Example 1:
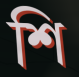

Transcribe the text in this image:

শি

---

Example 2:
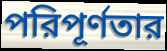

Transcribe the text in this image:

পরিপূর্ণতার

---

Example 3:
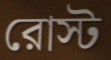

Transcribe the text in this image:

রোস্ট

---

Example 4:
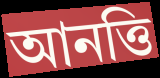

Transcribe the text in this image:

আনত্তি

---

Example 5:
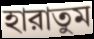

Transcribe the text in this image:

হারাতুম